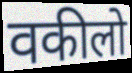
वकीलो